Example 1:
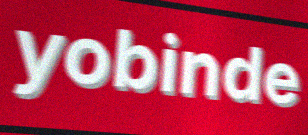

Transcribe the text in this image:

yobinde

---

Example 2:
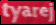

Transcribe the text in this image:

tyarej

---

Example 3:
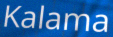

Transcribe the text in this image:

Kalama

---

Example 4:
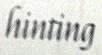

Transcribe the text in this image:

hinting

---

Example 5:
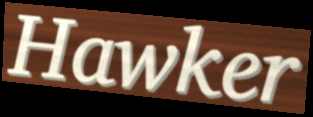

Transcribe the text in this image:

Hawker